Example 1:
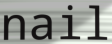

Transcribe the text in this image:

nail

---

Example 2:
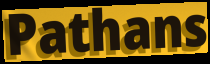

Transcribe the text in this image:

Pathans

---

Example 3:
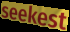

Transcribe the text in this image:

seekest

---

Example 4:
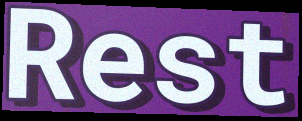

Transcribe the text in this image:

Rest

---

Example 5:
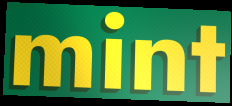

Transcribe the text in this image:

mint